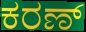
ಕರಣ್